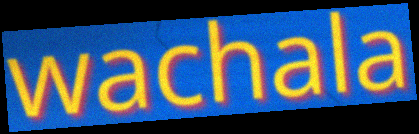
wachala